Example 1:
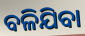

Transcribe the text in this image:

ବଳିଯିବା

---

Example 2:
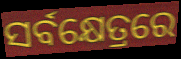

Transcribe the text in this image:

ସର୍ବକ୍ଷେତ୍ରରେ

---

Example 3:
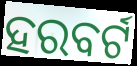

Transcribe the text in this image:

ହରବର୍ଟ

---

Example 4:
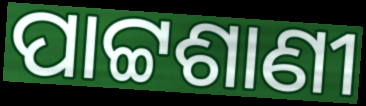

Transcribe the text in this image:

ପାଟ୍ଟଶାଣୀ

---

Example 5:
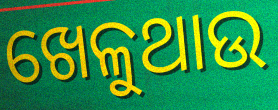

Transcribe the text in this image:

ଖେଳୁଥାଉ